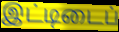
இட்டிடைப்